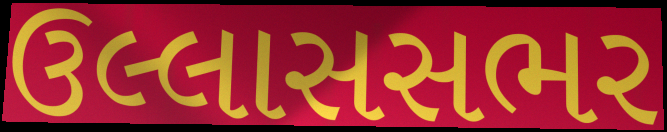
ઉલ્લાસસભર